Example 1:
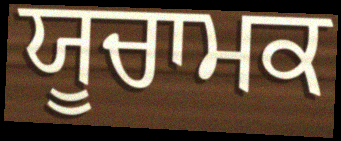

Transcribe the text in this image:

ਯੂਚਾਮਕ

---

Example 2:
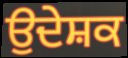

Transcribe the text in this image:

ਉਦੇਸ਼ਕ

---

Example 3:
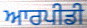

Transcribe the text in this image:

ਆਰਪੀਡੀ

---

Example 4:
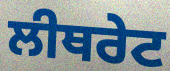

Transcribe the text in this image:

ਲੀਥਰੇਟ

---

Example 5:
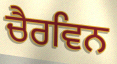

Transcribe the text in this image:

ਚੈਰਵਿਨ